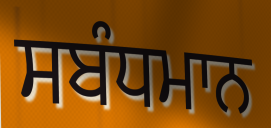
ਸਬੰਧਮਾਨ